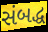
સંબદ્ધ